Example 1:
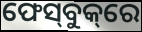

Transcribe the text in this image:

ଫେସ୍‌ବୁକ୍‌ରେ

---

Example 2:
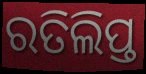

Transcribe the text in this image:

ରତିଲିପ୍ତ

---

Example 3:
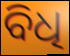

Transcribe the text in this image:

ବିଧି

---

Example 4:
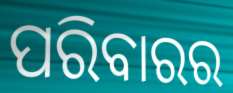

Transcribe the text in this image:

ପରିବାରର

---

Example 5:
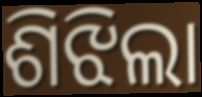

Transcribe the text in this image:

ଶିଝିଲା